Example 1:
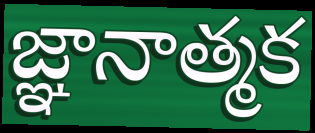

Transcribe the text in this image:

జ్ఞానాత్మక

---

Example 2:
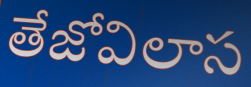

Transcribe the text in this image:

తేజోవిలాస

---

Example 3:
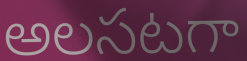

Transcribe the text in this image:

అలసటగా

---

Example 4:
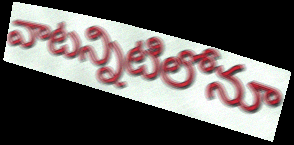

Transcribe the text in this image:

వాటన్నిటిలోనూ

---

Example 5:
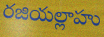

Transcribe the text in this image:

రజియల్లాహు